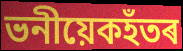
ভনীয়েকহঁতৰ